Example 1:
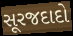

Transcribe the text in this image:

સૂરજદાદો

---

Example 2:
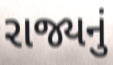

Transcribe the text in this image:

રાજ્યનું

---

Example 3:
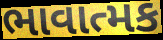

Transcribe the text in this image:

ભાવાત્મક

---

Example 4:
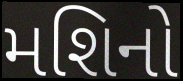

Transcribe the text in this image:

મશિનો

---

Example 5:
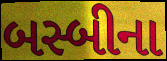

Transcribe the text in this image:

બસ્બીના